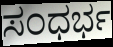
ಸಂಧರ್ಭ